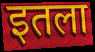
इतला